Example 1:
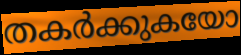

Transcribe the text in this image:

തകർക്കുകയോ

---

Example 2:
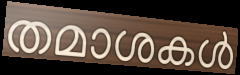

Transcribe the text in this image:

തമാശകൾ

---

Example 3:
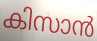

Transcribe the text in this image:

കിസാൻ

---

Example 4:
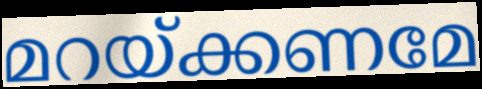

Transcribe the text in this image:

മറയ്ക്കണമേ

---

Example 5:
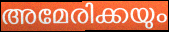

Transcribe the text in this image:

അമേരിക്കയും